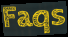
Faqs